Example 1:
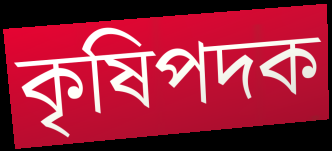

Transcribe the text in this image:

কৃষিপদক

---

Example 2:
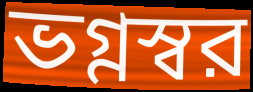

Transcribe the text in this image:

ভগ্নস্বর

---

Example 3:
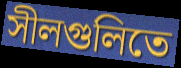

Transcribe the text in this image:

সীলগুলিতে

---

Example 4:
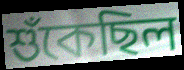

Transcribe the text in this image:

শুঁকেছিল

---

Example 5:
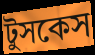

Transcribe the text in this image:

টুসকেস